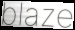
blaze